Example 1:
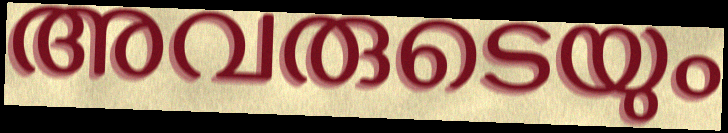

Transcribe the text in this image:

അവരുടെയും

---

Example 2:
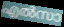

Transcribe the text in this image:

എൽസാ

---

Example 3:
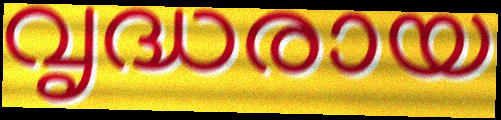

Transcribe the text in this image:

വൃദ്ധരായ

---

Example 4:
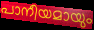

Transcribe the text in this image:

പാനീയമായും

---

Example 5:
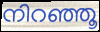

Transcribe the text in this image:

നിറഞ്ഞൂ